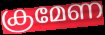
ക്രമേണ